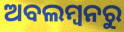
ଅବଲମ୍ବନରୁ